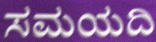
ಸಮಯದಿ